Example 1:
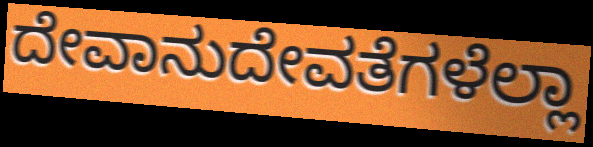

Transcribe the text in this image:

ದೇವಾನುದೇವತೆಗಳೆಲ್ಲಾ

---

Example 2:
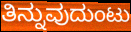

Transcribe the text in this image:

ತಿನ್ನುವುದುಂಟು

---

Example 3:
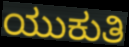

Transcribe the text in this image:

ಯುಕುತಿ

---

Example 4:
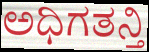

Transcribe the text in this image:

ಅಧಿಗತನ್ತಿ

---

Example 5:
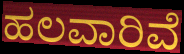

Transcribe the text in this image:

ಹಲವಾರಿವೆ